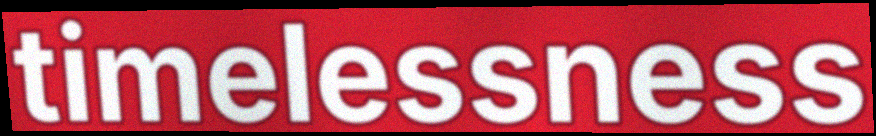
timelessness